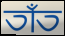
তাঁত